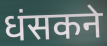
धंसकने